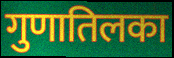
गुणातिलका